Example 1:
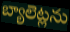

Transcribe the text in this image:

బ్యాలెట్లను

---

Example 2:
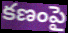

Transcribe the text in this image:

కణంపై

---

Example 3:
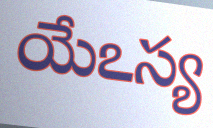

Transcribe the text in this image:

యేఽస్య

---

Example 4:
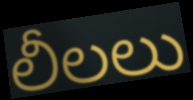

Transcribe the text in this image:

లీలలు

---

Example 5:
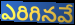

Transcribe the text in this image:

ఎరిగినవే